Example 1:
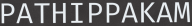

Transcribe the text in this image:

PATHIPPAKAM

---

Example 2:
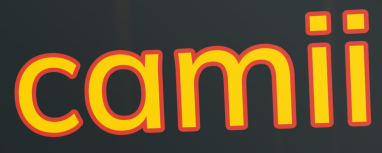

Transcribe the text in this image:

camii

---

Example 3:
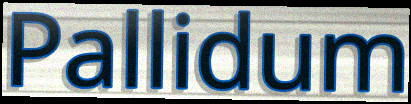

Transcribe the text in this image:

Pallidum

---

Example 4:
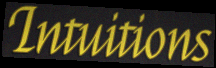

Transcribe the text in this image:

Intuitions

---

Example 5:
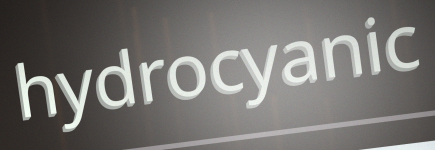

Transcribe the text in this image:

hydrocyanic